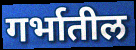
गर्भातील